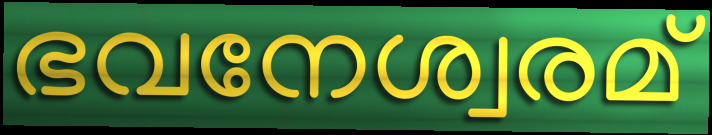
ഭവനേശ്വരമ്